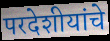
परदेशीयांचे